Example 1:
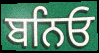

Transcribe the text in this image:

ਬਨਿਓ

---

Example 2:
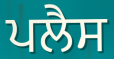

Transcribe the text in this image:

ਪਲੈਸ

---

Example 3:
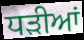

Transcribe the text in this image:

ਧੜੀਆਂ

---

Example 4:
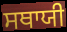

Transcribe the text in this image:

ਸਥਾਯੀ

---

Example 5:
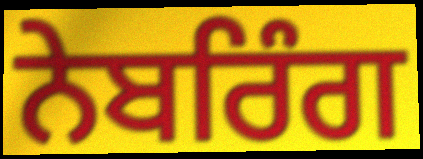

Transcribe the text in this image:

ਨੇਬਰਿੰਗ